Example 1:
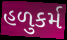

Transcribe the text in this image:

હળુકર્મ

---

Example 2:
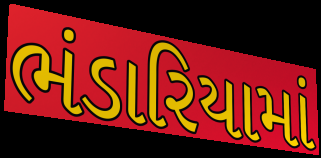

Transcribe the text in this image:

ભંડારિયામાં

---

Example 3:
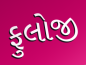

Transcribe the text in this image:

ફુલોજી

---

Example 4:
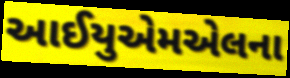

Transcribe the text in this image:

આઈયુએમએલના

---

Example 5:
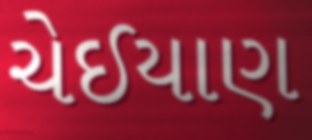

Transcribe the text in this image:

ચેઈયાણ